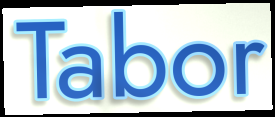
Tabor